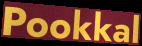
Pookkal